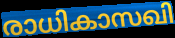
രാധികാസഖി